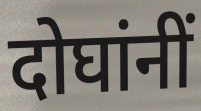
दोघांनीं